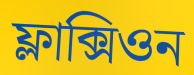
ফ্লাক্সিওন